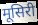
मूसिरी